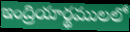
ఇంద్రియార్థములలో